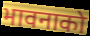
भावनाको